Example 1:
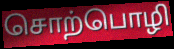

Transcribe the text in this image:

சொற்பொழி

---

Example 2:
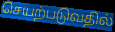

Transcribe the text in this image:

செயற்படுவதில்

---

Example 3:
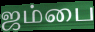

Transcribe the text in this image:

ஜம்பை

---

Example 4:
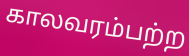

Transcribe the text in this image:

காலவரம்பற்ற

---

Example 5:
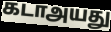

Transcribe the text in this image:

கடாஅயது